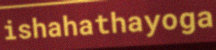
ishahathayoga